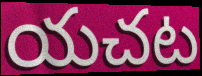
యచట